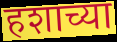
हशाच्या